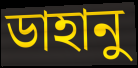
ডাহানু